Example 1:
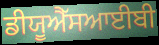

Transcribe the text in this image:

ਡੀਯੂਐੱਸਆਈਬੀ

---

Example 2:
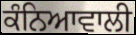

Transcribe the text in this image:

ਕੰਨਿਆਵਾਲੀ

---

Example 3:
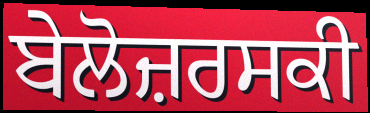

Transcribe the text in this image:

ਬੇਲੋਜ਼ਰਸਕੀ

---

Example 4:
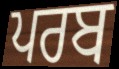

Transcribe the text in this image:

ਪਰਬ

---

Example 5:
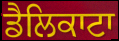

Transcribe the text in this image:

ਡੈਲਿਕਾਟਾ